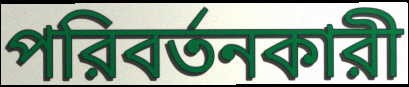
পরিবর্তনকারী